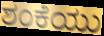
ಶಂಕೆಯು